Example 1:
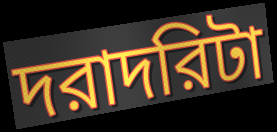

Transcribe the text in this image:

দরাদরিটা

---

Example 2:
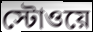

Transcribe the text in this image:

স্টোওয়ে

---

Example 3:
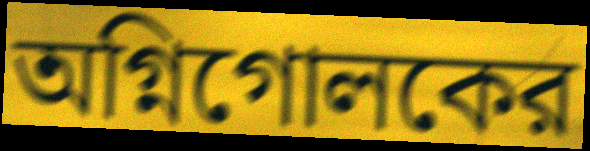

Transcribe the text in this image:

অগ্নিগোলকের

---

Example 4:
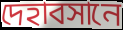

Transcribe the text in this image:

দেহাবসানে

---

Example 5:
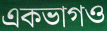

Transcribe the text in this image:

একভাগও